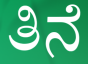
ತಿನೆ